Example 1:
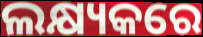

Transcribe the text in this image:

ଲକ୍ଷ୍ୟକରେ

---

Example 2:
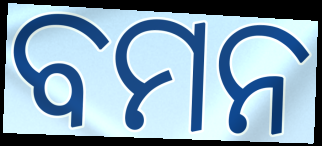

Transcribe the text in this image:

ବମନ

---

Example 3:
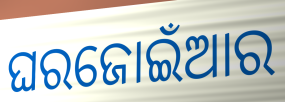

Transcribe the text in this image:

ଘରଜୋଇଁଆର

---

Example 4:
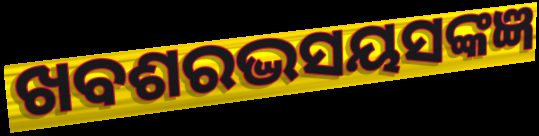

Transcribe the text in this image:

ଖବଶରଦ୍ଭସୟସଙ୍କଜ୍ଞ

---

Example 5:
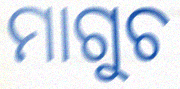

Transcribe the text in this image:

ମାଗୁଚ